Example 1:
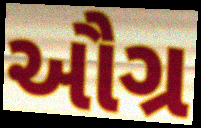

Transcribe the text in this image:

ઔગ્ર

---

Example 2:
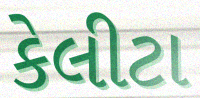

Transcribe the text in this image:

કેલીટા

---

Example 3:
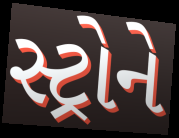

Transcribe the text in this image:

સ્ટ્રોને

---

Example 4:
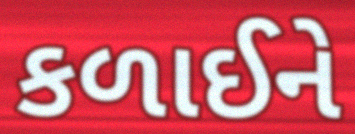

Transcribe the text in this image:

કળાઈને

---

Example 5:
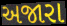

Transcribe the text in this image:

અજારા